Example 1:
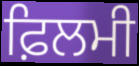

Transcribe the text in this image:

ਫ਼ਿਲਮੀ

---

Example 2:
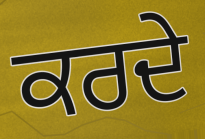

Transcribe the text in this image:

ਕਰਦੇ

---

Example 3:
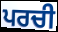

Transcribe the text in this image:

ਪਰਚੀ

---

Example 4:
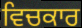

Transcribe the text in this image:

ਵਿਚਕਾਰ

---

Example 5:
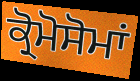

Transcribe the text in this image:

ਕ੍ਰੋਮੋਸੋਮਾਂ